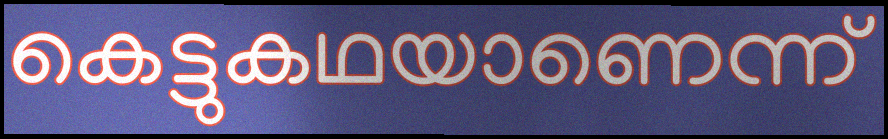
കെട്ടുകഥയാണെന്ന്